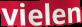
vielen